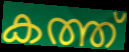
കത്ത്